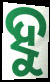
ହୁ